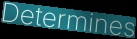
Determines